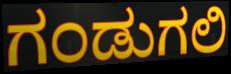
ಗಂಡುಗಲಿ